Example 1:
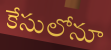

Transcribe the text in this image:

కేసులోనూ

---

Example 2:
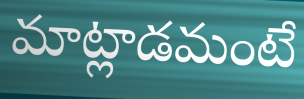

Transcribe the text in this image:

మాట్లాడమంటే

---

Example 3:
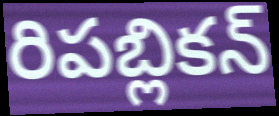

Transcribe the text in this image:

రిపబ్లికన్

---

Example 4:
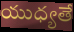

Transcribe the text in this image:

యుధ్యతే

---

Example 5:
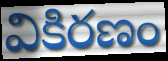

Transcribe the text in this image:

వికిరణం